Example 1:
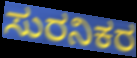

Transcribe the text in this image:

ಸುರನಿಕರ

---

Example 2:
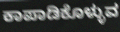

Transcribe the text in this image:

ಕಾಪಾಡಿಕೊಳ್ಳುವ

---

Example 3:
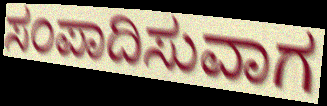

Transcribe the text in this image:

ಸಂಪಾದಿಸುವಾಗ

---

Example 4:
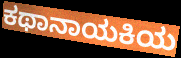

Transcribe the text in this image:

ಕಥಾನಾಯಕಿಯ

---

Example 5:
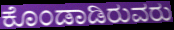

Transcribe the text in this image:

ಕೊಂಡಾಡಿರುವರು